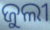
ଜୁଲୀ